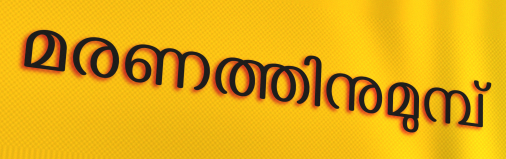
മരണത്തിനുമുമ്പ്